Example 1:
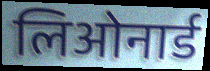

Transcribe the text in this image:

लिओनार्ड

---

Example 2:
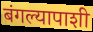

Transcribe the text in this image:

बंगल्यापाशी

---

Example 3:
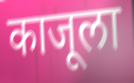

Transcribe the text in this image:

काजूला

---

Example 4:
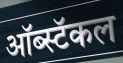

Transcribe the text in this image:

ऑब्स्टॅकल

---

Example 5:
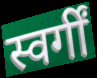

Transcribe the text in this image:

स्वर्गीं